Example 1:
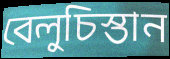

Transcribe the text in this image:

বেলুচিস্তান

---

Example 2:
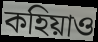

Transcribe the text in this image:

কহিয়াও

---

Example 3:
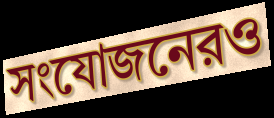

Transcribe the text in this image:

সংযোজনেরও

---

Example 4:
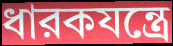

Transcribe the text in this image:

ধারকযন্ত্রে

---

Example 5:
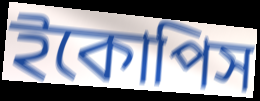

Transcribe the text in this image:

ইকোপিস